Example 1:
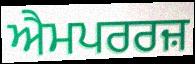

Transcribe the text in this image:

ਐਮਪਰਰਜ਼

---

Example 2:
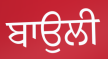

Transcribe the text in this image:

ਬਾਉਲੀ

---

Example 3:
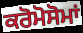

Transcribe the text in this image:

ਕਰੋਮੋਸੋਮਾਂ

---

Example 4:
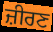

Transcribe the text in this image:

ਜ਼ੀਰਣ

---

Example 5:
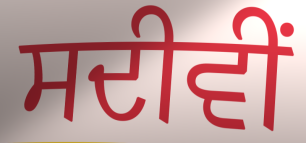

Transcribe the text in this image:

ਸਦੀਵੀਂ